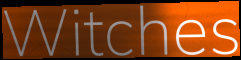
Witches